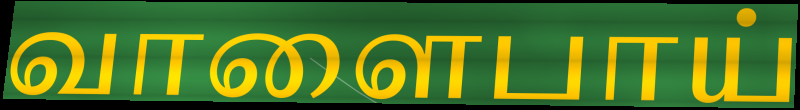
வாளைபாய்